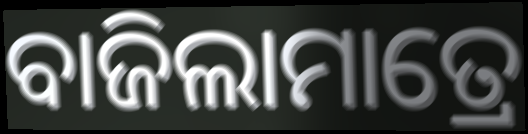
ବାଜିଲାମାତ୍ରେ